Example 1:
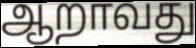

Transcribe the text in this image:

ஆறாவது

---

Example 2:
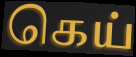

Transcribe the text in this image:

கெய்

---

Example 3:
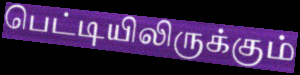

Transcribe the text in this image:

பெட்டியிலிருக்கும்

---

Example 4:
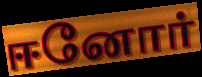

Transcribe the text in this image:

ஈனோர்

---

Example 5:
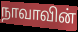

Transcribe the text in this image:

நாவாவின்